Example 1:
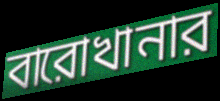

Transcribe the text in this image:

বারোখানার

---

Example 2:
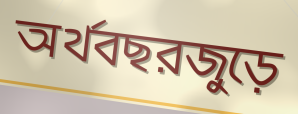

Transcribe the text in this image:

অর্থবছরজুড়ে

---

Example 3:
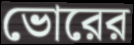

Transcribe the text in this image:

ভোরের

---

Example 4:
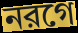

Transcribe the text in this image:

নরগে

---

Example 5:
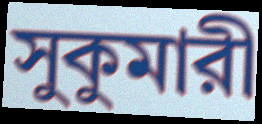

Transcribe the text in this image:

সুকুমারী